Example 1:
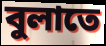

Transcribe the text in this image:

বুলাতে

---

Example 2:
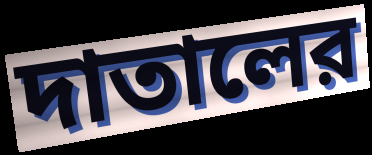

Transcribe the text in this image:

দাতালের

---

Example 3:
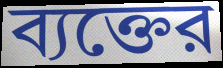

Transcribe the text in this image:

ব্যক্তের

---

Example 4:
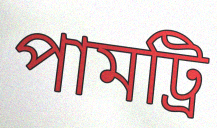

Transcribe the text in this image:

পামট্রি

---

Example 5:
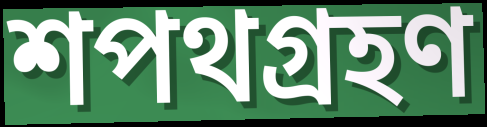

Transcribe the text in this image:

শপথগ্রহণ